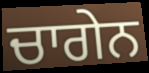
ਚਾਗੇਨ